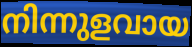
നിന്നുളവായ